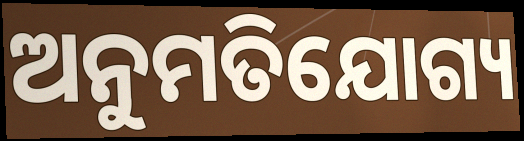
ଅନୁମତିଯୋଗ୍ୟ